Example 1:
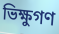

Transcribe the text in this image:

ভিক্ষুগণ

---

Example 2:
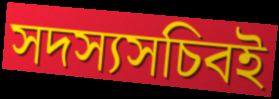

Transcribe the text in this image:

সদস্যসচিবই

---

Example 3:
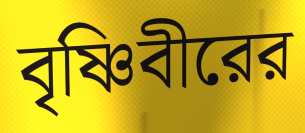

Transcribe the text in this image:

বৃষ্ণিবীরের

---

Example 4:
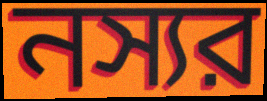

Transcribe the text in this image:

নস্যর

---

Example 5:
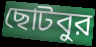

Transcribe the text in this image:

ছোটবুর